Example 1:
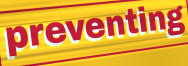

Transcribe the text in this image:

preventing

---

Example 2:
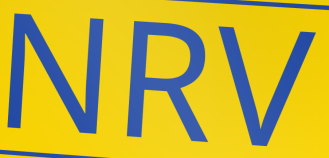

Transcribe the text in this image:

NRV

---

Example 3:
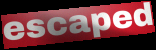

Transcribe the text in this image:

escaped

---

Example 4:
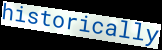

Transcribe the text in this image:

historically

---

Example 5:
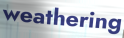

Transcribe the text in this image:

weathering